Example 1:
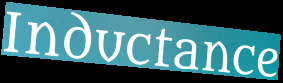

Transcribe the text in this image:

Inductance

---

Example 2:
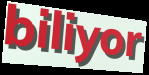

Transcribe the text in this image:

biliyor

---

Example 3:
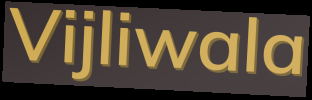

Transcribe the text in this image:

Vijliwala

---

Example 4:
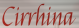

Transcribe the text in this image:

Cirrhina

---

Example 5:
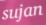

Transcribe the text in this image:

sujan